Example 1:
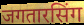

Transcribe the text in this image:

जगतारसिंग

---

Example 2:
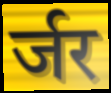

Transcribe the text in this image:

र्जर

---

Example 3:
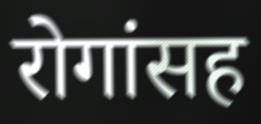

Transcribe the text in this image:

रोगांसह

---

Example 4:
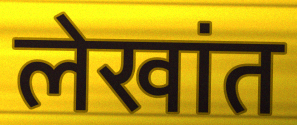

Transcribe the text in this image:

लेखांत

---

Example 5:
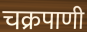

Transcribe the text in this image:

चक्रपाणी